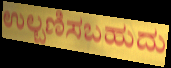
ಉಲ್ಬಣಿಸಬಹುದು